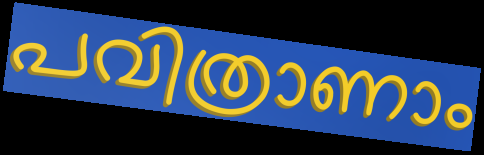
പവിത്രാണാം